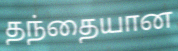
தந்தையான